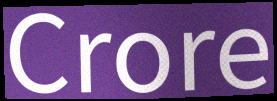
Crore